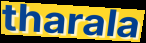
tharala